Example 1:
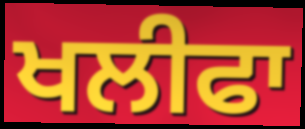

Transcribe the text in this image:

ਖਲੀਫਾ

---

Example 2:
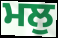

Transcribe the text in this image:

ਮਲੁ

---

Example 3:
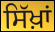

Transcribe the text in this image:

ਸਿੱਖ਼ਾਂ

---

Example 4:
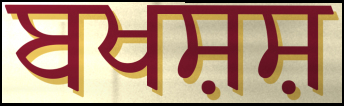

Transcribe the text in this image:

ਬਖਸ਼ਸ਼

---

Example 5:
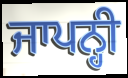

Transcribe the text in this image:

ਜਾਪਨ੍ਹੀ